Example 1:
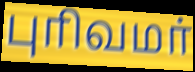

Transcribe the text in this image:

புரிவமர்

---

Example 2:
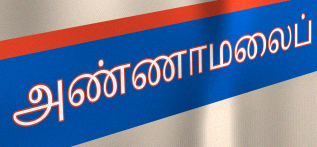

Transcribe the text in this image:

அண்ணாமலைப்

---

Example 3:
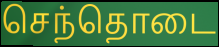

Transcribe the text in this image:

செந்தொடை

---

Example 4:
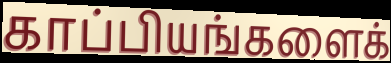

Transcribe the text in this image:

காப்பியங்களைக்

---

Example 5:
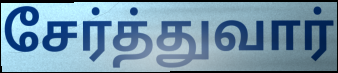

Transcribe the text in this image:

சேர்த்துவார்